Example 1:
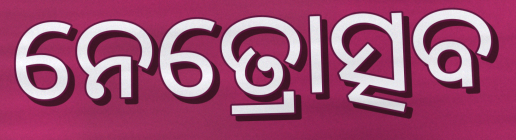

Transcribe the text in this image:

ନେତ୍ରୋତ୍ସବ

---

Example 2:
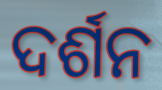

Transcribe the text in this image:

ଦର୍ଶନ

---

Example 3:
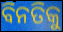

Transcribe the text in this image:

ବିନତିକୁ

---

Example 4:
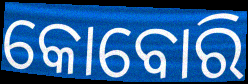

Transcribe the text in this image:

କୋବୋରି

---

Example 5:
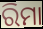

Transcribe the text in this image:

ରିମା